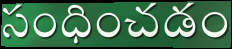
సంధించడం